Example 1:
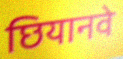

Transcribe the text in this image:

छियानवे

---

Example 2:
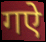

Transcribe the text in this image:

गऐ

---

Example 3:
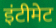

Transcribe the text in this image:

इंटीमेट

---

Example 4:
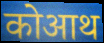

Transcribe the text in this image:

कोआथ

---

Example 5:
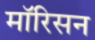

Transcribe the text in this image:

मॉरिसन